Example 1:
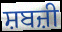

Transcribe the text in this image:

ਸ਼ਬਜ਼ੀ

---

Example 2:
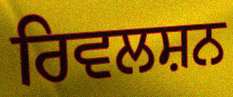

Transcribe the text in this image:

ਰਿਵਲਸ਼ਨ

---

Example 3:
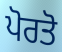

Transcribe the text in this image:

ਪੋਰਤੋ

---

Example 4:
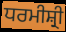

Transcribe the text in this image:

ਧਰਮੀਸ਼੍ਰੀ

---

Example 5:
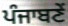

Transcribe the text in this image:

ਪੰਜਾਬਣੇਂ